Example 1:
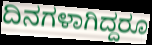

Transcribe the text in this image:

ದಿನಗಳಾಗಿದ್ದರೂ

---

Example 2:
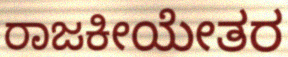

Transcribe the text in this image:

ರಾಜಕೀಯೇತರ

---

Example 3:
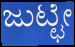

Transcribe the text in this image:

ಜುಟ್ಟೇ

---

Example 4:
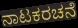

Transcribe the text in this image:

ನಾಟಕರಚನೆ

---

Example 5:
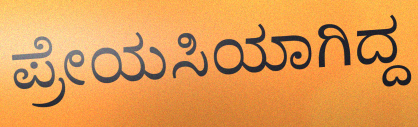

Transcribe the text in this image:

ಪ್ರೇಯಸಿಯಾಗಿದ್ದ